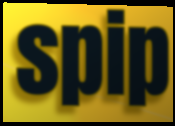
spip